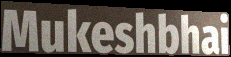
Mukeshbhai